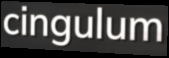
cingulum